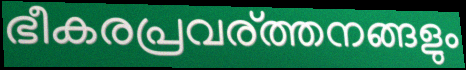
ഭീകരപ്രവര്ത്തനങ്ങളും